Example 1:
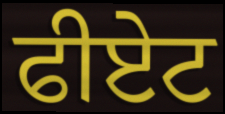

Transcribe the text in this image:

ਫੀਏਟ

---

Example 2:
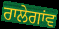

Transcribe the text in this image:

ਰਾਲੇਗਾਂਵ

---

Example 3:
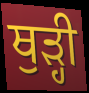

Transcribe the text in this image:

ਥੁੜ੍ਹੀ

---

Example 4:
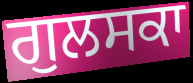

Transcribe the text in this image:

ਗੁਲਸਕਾ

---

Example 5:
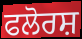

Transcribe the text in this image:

ਫਲੋਰਸ਼